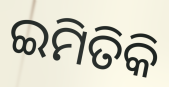
ଇମିତିକି